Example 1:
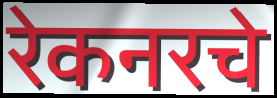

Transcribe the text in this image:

रेकनरचे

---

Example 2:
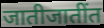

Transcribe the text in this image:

जातीजातींत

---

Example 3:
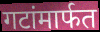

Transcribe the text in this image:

गटांमार्फत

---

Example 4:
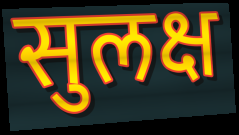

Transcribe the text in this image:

सुलक्ष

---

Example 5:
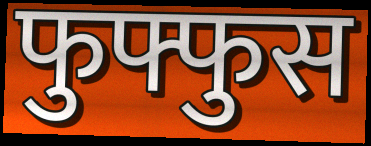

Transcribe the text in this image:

फुफ्फुस